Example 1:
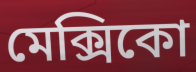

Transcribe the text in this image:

মেক্সিকো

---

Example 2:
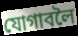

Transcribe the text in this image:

যোগাবলৈ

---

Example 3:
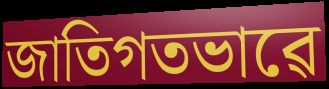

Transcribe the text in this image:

জাতিগতভাৱে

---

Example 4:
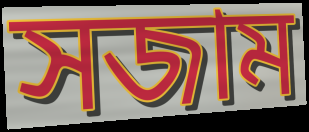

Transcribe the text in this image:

সজাম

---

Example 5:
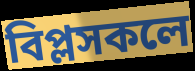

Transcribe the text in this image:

বিপ্লসকলে